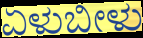
ಏಳುಬೀಳು